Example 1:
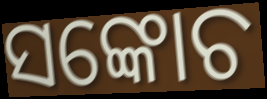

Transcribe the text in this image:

ସଙ୍କୋଚ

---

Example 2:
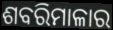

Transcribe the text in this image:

ଶବରିମାଳାର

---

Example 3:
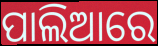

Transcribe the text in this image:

ପାଲିଆରେ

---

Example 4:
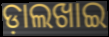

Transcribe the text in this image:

ଡ଼ାଲଖାଇ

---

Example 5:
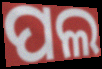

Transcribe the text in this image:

ପଲ